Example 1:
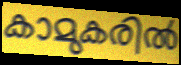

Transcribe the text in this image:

കാമുകരിൽ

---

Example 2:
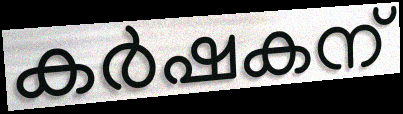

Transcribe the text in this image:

കർഷകന്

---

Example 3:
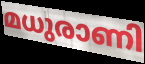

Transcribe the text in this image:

മധുരാണി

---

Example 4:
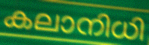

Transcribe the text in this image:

കലാനിധി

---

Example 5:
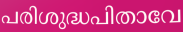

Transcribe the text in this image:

പരിശുദ്ധപിതാവേ